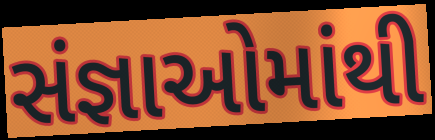
સંજ્ઞાઓમાંથી